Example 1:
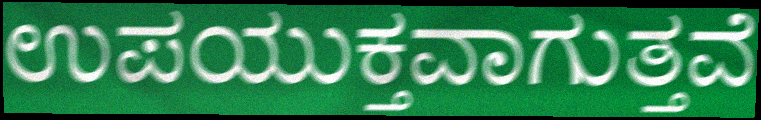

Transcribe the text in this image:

ಉಪಯುಕ್ತವಾಗುತ್ತವೆ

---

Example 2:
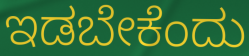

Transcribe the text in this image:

ಇಡಬೇಕೆಂದು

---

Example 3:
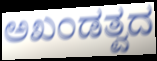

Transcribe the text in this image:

ಅಖಂಡತ್ವದ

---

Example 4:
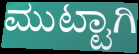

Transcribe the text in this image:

ಮುಟ್ಟಾಗಿ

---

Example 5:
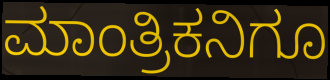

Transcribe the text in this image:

ಮಾಂತ್ರಿಕನಿಗೂ